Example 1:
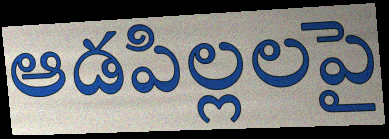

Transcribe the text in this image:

ఆడపిల్లలపై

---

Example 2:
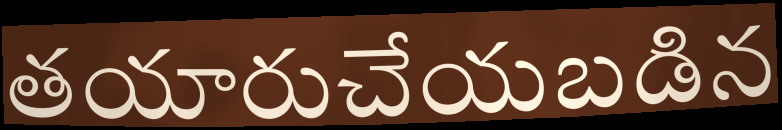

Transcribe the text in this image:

తయారుచేయబడిన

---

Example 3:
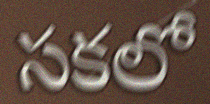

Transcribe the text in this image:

సకలో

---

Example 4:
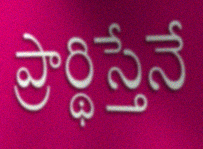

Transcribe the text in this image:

ప్రార్థిస్తేనే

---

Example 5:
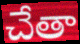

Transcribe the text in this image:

చేతా